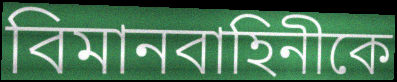
বিমানবাহিনীকে